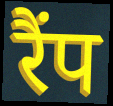
रैंप